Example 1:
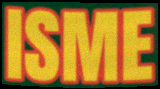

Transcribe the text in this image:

ISME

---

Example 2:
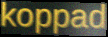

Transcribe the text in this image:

koppad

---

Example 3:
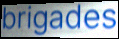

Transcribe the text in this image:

brigades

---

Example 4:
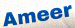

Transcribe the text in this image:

Ameer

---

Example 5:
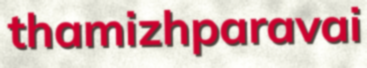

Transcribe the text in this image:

thamizhparavai